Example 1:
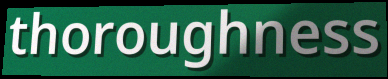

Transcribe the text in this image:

thoroughness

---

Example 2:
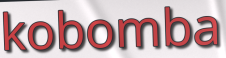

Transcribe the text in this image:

kobomba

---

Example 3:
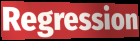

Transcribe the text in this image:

Regression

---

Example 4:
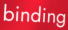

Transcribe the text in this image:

binding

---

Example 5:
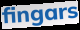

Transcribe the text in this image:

fingars